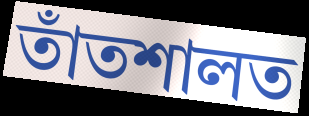
তাঁতশালত